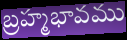
బ్రహ్మభావము